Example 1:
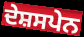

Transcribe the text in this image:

ਦੇਸ਼ਸਪੇਨ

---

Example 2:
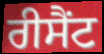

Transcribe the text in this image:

ਰੀਸੈਂਟ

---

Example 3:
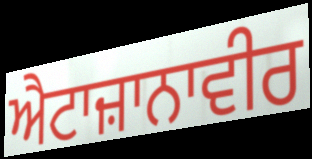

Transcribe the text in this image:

ਐਟਾਜ਼ਾਨਾਵੀਰ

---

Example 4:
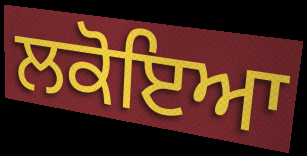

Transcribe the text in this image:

ਲਕੋਇਆ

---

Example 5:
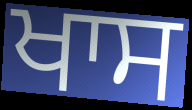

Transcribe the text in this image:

ਖਾਸ